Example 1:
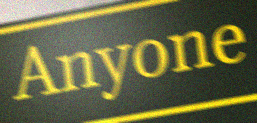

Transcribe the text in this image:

Anyone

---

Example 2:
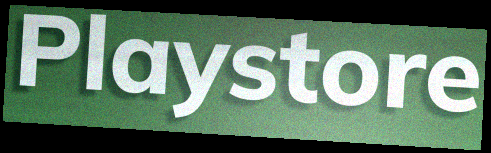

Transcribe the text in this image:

Playstore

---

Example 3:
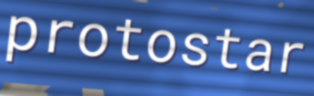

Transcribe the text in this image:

protostar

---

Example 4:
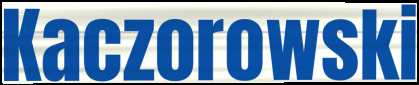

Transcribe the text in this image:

Kaczorowski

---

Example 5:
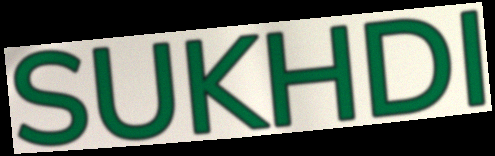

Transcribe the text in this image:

SUKHDI